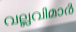
വല്ലവിമാർ